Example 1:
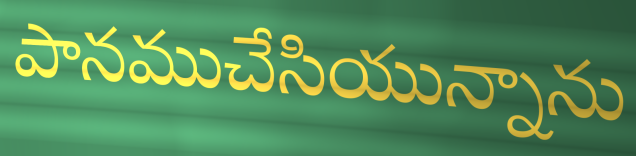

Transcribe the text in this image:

పానముచేసియున్నాను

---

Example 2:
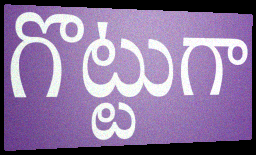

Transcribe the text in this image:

గొట్టుగా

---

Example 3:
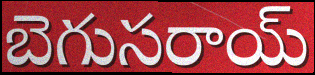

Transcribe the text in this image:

బెగుసరాయ్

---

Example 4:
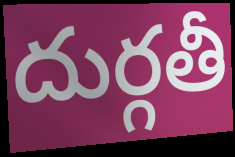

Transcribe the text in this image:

దుర్గతీ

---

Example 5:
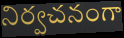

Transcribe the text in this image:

నిర్వచనంగా